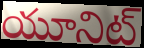
యూనిట్